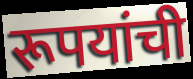
रूपयांची